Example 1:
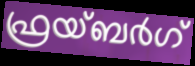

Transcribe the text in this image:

ഫ്രയ്ബർഗ്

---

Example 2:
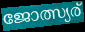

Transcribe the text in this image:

ജോത്സ്യര്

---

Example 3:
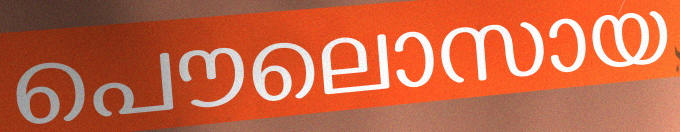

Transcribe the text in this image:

പൌലൊസായ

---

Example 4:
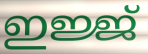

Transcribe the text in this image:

ഇജ്ജ്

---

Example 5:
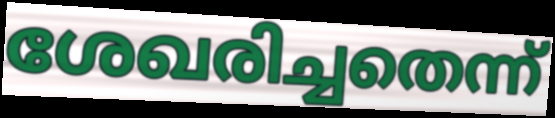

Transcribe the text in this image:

ശേഖരിച്ചതെന്ന്